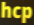
hcp